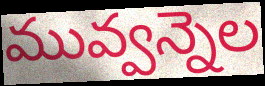
మువ్వన్నెల